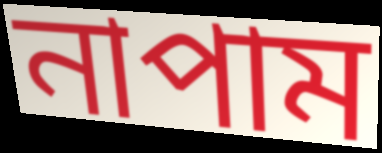
নাপাম